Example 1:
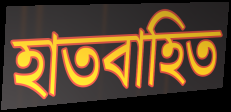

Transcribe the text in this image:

হাতবাহিত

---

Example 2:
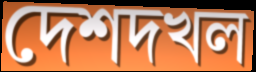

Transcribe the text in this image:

দেশদখল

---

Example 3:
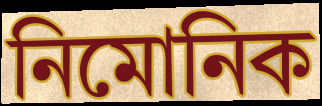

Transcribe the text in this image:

নিমোনিক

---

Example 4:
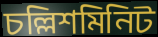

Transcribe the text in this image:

চল্লিশমিনিট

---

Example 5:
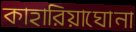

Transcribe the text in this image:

কাহারিয়াঘোনা